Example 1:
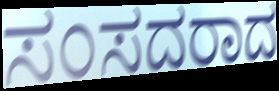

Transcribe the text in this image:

ಸಂಸದರಾದ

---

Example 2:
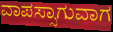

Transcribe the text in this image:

ವಾಪಸ್ಸಾಗುವಾಗ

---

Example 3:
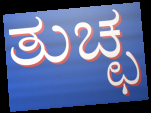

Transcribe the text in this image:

ತುಚ್ಛ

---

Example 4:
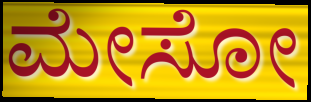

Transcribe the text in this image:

ಮೇಸೋ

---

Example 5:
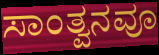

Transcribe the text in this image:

ಸಾಂತ್ವನವೂ